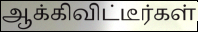
ஆக்கிவிட்டீர்கள்